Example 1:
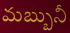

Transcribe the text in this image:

మబ్బునీ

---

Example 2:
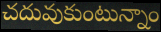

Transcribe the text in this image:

చదువుకుంటున్నాం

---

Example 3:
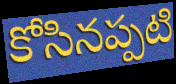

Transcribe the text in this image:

కోసినప్పటి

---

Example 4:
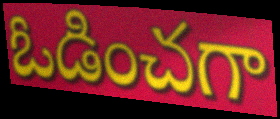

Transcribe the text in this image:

ఓడించగా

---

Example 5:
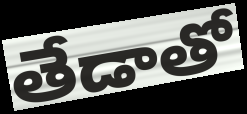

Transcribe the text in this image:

తేడాతో